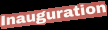
Inauguration